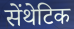
सेंथेटिक